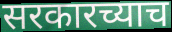
सरकारच्याच